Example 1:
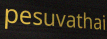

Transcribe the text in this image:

pesuvathai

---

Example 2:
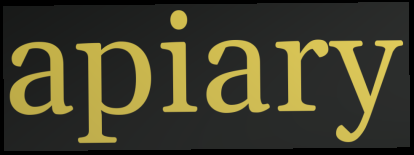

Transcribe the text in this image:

apiary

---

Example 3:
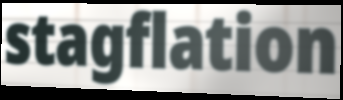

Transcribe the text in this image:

stagflation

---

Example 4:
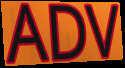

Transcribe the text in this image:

ADV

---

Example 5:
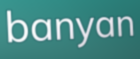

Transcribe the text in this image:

banyan